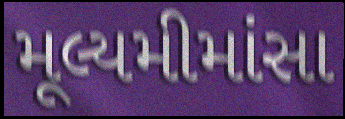
મૂલ્યમીમાંસા